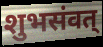
शुभसंवत्